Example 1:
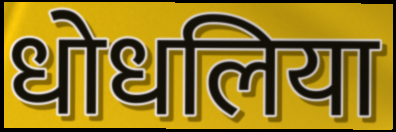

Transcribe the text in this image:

धोधलिया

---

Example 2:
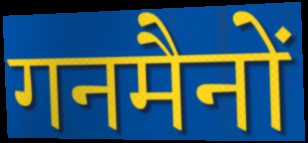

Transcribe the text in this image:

गनमैनों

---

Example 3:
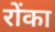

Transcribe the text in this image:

रोंका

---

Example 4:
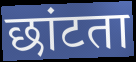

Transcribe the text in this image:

छांटता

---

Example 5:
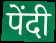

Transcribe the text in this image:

पेंदी